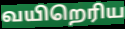
வயிறெரிய